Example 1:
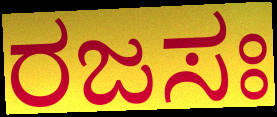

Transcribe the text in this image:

ರಜಸಃ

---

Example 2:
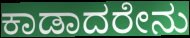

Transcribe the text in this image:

ಕಾಡಾದರೇನು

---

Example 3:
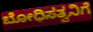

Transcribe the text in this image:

ಬೋಧಿಸತ್ವನಿಗೆ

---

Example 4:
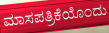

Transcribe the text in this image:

ಮಾಸಪತ್ರಿಕೆಯೊಂದು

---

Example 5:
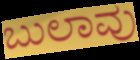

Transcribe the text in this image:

ಬುಲಾವು